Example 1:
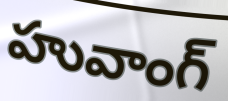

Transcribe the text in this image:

హువాంగ్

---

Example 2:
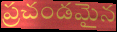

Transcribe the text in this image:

ప్రచండమైన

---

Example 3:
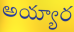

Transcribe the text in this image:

అయ్యార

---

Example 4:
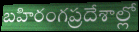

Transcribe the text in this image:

బహిరంగప్రదేశాల్లో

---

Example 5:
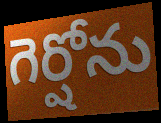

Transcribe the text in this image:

గెర్షోను